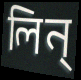
লিন্